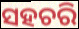
ସହଚରି